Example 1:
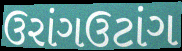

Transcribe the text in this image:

ઉરાંગઉટાંગ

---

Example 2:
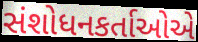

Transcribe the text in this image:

સંશોધનકર્તાઓએ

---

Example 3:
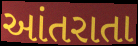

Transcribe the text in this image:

આંતરાતા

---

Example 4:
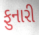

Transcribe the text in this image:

ફુનારી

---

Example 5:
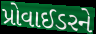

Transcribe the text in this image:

પ્રોવાઈડરને